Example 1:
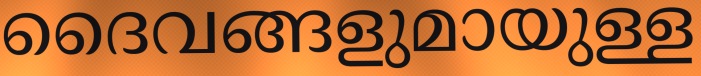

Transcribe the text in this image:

ദൈവങ്ങളുമായുള്ള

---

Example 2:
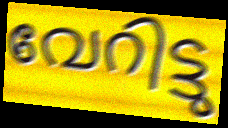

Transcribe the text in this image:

വേറിട്ടു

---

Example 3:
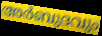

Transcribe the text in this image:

അർബുദവും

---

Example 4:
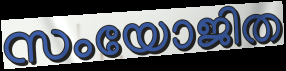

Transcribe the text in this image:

സംയോജിത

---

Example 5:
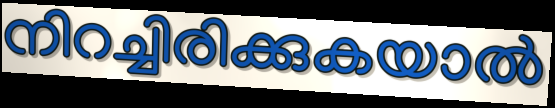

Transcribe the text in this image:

നിറച്ചിരിക്കുകയാൽ